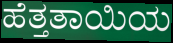
ಹೆತ್ತತಾಯಿಯ